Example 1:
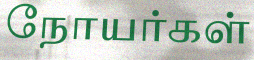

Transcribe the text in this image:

நோயர்கள்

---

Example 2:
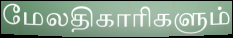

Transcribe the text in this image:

மேலதிகாரிகளும்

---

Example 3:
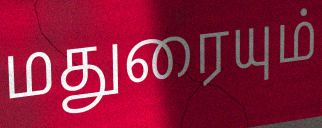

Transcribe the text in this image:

மதுரையும்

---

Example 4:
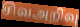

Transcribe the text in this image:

சிவஅறிவு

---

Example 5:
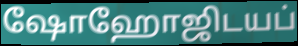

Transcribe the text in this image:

ஷோஹோஜிடயப்